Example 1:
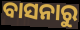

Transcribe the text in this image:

ବାସନାରୁ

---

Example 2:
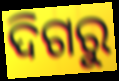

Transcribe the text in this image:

ଦିଗରୁ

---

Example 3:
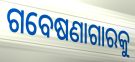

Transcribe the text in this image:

ଗବେଷଣାଗାରକୁ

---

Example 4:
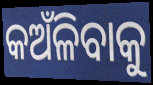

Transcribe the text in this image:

କଅଁଳିବାକୁ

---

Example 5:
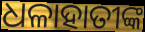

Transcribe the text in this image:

ଧଳାହାତୀଙ୍କ